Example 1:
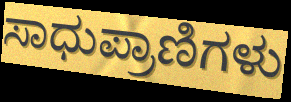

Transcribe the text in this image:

ಸಾಧುಪ್ರಾಣಿಗಳು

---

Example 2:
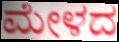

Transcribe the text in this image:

ಮೇಳದ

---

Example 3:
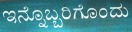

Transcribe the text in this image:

ಇನ್ನೊಬ್ಬರಿಗೊಂದು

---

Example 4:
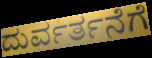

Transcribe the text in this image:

ದುರ್ವರ್ತನೆಗೆ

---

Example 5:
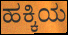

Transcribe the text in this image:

ಹಕ್ಕಿಯ